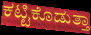
ಕಟ್ಟಿಕೊಡುತ್ತಾ